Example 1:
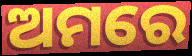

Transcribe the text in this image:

ଅମରେ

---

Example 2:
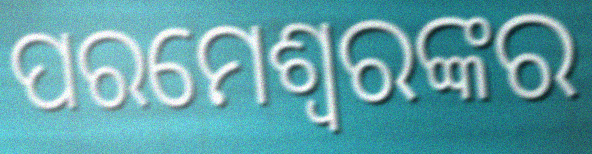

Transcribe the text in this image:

ପରମେଶ୍ଵରଙ୍କର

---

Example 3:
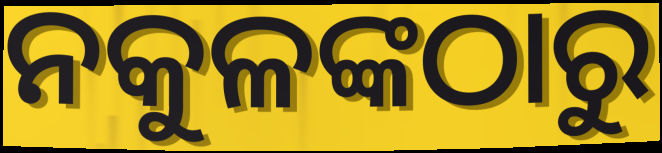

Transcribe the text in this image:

ନକୁଳଙ୍କଠାରୁ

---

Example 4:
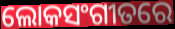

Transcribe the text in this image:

ଲୋକସଂଗୀତରେ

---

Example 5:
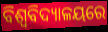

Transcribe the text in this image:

ବିଶ୍ୱବିଦ୍ୟାଳୟରେ